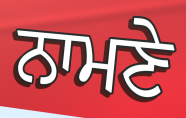
ਨਾਮਣੇ